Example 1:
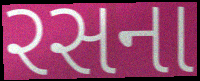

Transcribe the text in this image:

રસના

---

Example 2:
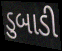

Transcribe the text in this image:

ડુબાડી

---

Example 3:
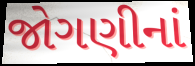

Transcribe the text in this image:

જોગણીનાં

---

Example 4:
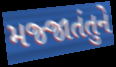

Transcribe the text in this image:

મજ્જાતંતુને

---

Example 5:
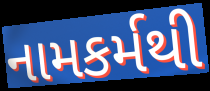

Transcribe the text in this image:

નામકર્મથી